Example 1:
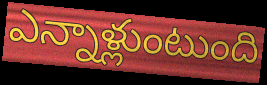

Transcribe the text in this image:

ఎన్నాళ్లుంటుంది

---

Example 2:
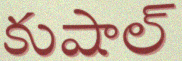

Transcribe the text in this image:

కుషాల్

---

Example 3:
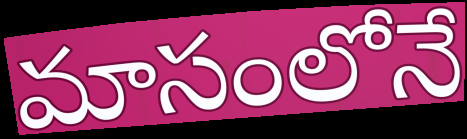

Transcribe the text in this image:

మాసంలోనే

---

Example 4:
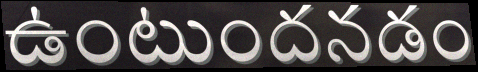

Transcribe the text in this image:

ఉంటుందనడం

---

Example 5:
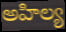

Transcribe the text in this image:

అహిల్య